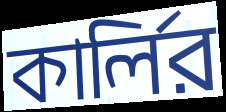
কার্লির